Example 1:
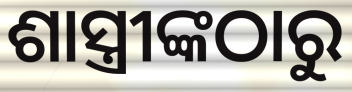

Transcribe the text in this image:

ଶାସ୍ତ୍ରୀଙ୍କଠାରୁ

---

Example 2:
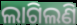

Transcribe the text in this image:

ଲାଗିଲଣି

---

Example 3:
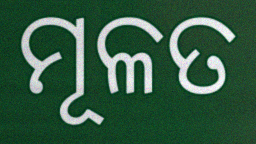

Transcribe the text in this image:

ମୂଳତ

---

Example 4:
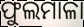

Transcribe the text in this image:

ଫୁଲମାଳା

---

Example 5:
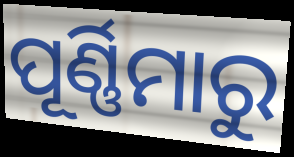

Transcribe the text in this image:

ପୂର୍ଣ୍ଣିମାରୁ